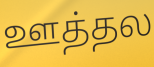
ஊத்தல